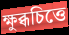
ক্ষুব্ধচিত্তে